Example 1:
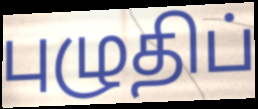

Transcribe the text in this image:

புழுதிப்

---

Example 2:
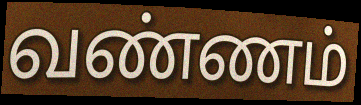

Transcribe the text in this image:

வண்ணம்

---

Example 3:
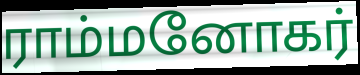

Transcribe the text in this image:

ராம்மனோகர்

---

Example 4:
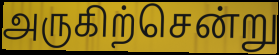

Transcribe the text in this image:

அருகிற்சென்று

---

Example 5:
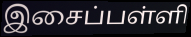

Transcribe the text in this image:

இசைப்பள்ளி